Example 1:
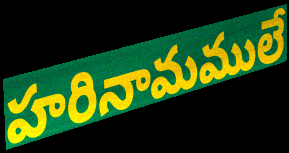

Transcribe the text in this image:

హరినామములే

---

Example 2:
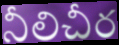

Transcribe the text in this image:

నీలిచీర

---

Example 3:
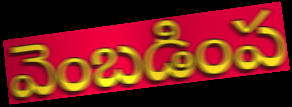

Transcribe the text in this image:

వెంబడింప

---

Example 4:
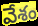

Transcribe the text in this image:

వేశం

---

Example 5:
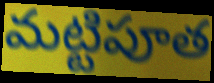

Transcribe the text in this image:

మట్టిపూత